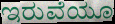
ಇರುವೆಯೂ